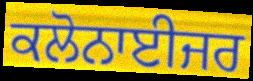
ਕਲੋਨਾਈਜਰ